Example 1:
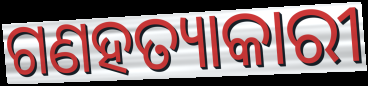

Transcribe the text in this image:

ଗଣହତ୍ୟାକାରୀ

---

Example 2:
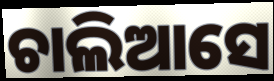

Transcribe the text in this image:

ଚାଲିଆସେ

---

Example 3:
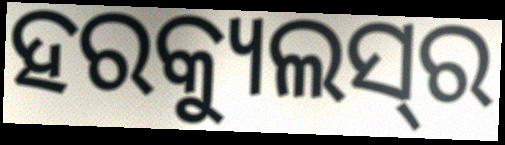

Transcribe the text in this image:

ହରକ୍ୟୁଲସ୍‍ର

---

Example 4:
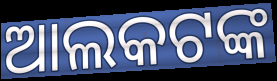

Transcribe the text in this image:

ଆଲକଟଙ୍କ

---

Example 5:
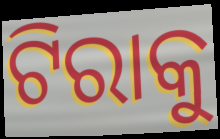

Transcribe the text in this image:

ଟିରାକୁ